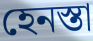
হেনস্তা